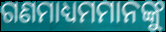
ଗଣମାଧ୍ୟମମାନଙ୍କୁ